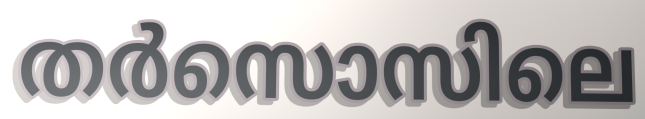
തർസൊസിലെ